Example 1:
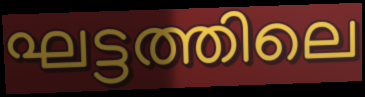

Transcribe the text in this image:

ഘട്ടത്തിലെ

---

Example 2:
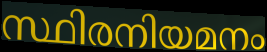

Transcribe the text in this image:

സ്ഥിരനിയമനം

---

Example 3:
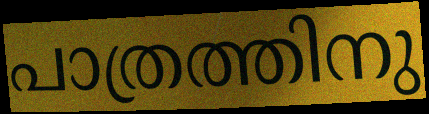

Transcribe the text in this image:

പാത്രത്തിനു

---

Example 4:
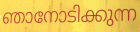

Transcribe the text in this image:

ഞാനോടിക്കുന്ന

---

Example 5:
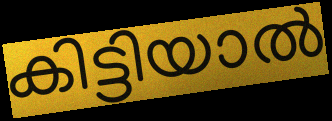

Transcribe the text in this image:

കിട്ടിയാൽ